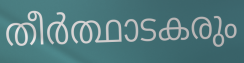
തീർത്ഥാടകരും